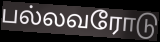
பல்லவரோடு